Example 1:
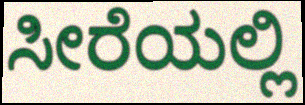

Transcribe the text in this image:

ಸೀರೆಯಲ್ಲಿ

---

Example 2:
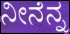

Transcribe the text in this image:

ನೀನೆನ್ನ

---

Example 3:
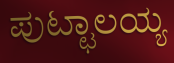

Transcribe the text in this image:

ಪುಟ್ಟಾಲಯ್ಯ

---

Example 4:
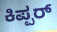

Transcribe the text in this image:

ಕಿಪ್ಪರ್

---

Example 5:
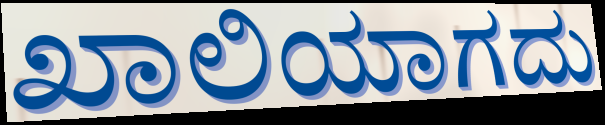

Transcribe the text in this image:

ಖಾಲಿಯಾಗದು